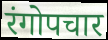
रंगोपचार